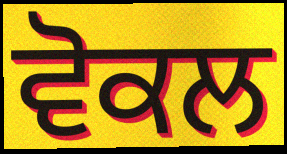
ਵੋਕਲ